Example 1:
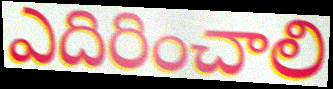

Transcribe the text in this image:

ఎదిరించాలి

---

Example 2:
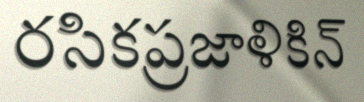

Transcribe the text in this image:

రసికప్రజాళికిన్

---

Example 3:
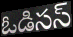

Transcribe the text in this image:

ఓడిసస్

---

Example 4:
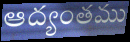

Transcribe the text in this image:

ఆద్యంతము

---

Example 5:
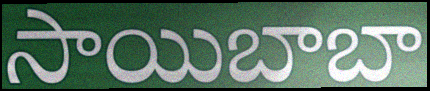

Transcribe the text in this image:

సాయిబాబా